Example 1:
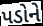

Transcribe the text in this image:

પડોને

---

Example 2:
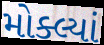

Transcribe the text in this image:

મોક્લ્યાં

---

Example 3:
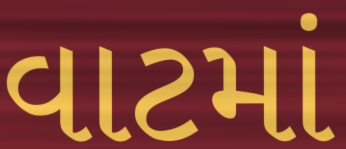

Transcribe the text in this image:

વાટમાં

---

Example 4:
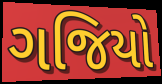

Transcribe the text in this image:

ગજિયો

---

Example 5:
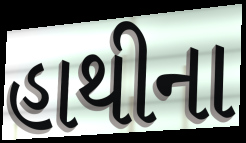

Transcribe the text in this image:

હાથીના